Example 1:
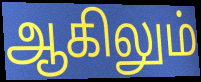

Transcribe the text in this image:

ஆகிலும்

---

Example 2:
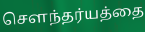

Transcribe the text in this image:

செளந்தர்யத்தை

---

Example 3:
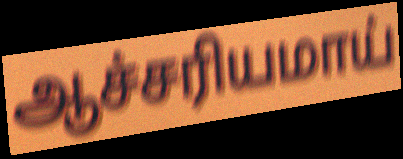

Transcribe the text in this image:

ஆச்சரியமாய்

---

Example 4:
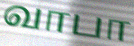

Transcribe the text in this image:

வாபா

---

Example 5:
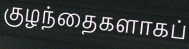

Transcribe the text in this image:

குழந்தைகளாகப்